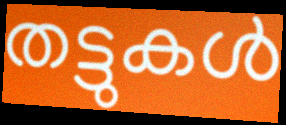
തട്ടുകൾ